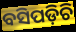
ବସିପଡ଼ିଚି